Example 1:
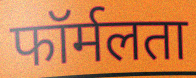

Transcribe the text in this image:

फॉर्मलता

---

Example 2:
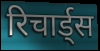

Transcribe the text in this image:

रिचार्ड्स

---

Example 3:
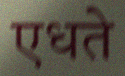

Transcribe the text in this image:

एधते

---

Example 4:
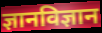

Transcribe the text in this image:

ज्ञानविज्ञान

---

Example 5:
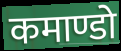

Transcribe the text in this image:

कमाण्डो